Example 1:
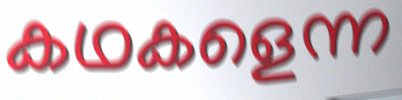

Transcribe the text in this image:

കഥകളെന്ന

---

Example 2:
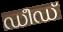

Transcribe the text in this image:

ഡീഡ്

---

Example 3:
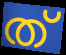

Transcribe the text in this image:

ത്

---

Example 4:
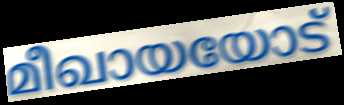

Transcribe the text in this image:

മീഖായയോട്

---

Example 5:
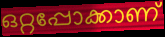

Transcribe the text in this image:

ഒറ്റപ്പോക്കാണ്